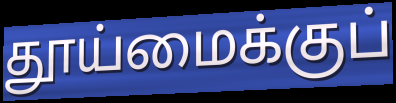
தூய்மைக்குப்